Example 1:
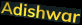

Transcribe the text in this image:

Adishwar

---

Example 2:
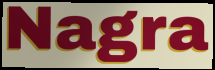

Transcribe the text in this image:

Nagra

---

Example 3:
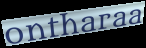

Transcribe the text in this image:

ontharaa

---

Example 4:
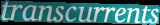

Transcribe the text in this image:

transcurrents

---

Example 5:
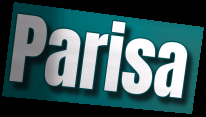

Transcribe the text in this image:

Parisa